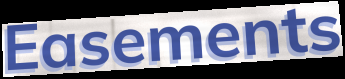
Easements